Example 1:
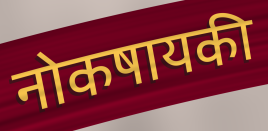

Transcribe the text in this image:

नोकषायकी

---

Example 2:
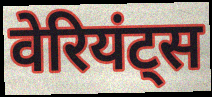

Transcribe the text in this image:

वेरियंट्स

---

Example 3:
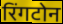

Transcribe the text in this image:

रिंगटोन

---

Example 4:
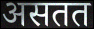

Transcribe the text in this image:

असतत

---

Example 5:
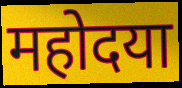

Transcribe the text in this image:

महोदया